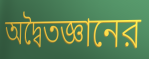
অদ্বৈতজ্ঞানের